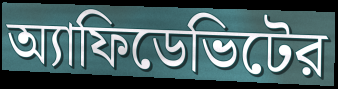
অ্যাফিডেভিটের